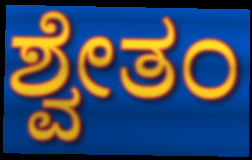
ಶ್ವೇತಂ